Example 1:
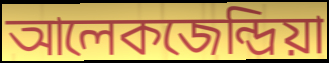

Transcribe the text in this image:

আলেকজেন্দ্ৰিয়া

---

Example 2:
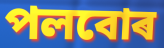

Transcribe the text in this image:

পলবোৰ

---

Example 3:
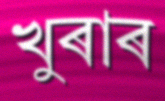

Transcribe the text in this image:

খুৰাৰ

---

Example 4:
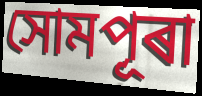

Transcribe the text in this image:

সোমপূৰা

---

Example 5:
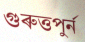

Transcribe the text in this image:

গুৰুত্তপুৰ্ন